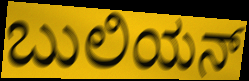
ಬುಲಿಯನ್